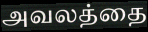
அவலத்தை